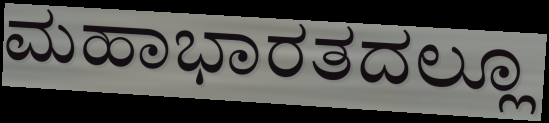
ಮಹಾಭಾರತದಲ್ಲೂ